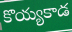
కొయ్యకాడ